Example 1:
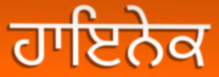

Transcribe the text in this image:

ਹਾਇਨੇਕ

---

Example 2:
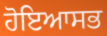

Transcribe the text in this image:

ਹੋਇਆਸਭ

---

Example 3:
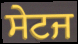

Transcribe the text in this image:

ਸੇਟਜ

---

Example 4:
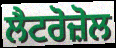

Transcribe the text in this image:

ਲੈਟਰੋਜ਼ੋਲ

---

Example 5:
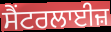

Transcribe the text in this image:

ਸੈਂਟਰਲਾਈਜ਼